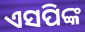
ଏସପିଙ୍କ